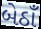
બેઠાઁ